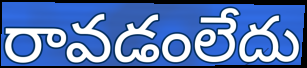
రావడంలేదు